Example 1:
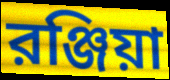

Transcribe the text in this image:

রঞ্জিয়া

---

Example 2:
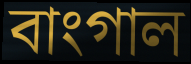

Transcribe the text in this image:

বাংগাল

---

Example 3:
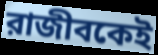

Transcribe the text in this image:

রাজীবকেই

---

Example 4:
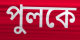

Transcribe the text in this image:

পুলকে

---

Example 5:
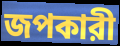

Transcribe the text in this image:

জপকারী